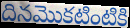
దినమొకటింటికి